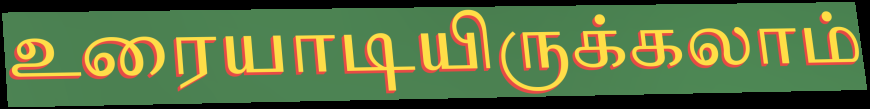
உரையாடியிருக்கலாம்